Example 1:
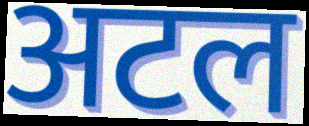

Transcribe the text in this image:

अटल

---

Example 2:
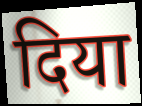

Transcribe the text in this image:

दिया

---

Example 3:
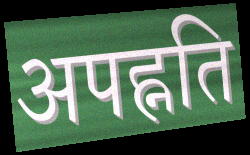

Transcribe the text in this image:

अपह्नति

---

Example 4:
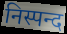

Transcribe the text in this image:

निस्पन्द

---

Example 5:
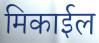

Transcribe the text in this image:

मिकाईल